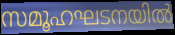
സമൂഹഘടനയിൽ